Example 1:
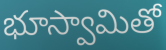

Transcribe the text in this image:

భూస్వామితో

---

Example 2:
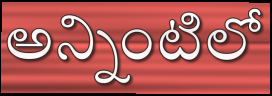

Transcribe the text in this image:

అన్నింటిలో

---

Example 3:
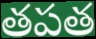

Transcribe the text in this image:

తపత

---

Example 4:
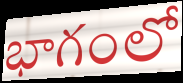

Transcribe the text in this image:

భాగంలో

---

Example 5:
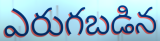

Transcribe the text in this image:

ఎరుగబడిన